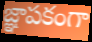
జ్ఞాపకంగా